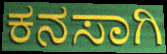
ಕನಸಾಗಿ